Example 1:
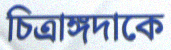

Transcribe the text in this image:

চিত্রাঙ্গদাকে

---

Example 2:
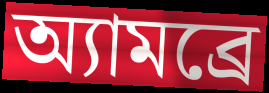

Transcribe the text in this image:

অ্যামব্রে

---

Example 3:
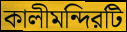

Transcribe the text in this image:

কালীমন্দিরটি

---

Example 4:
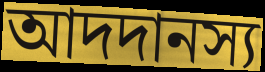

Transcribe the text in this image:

আদদানস্য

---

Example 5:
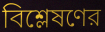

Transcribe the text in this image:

বিশ্লেষণের